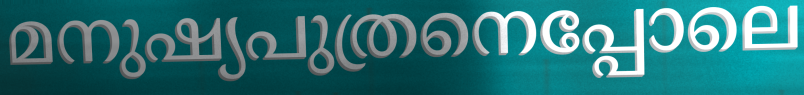
മനുഷ്യപുത്രനെപ്പോലെ